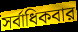
সর্বাধিকবার